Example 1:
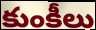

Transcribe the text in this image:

కుంకీలు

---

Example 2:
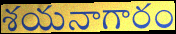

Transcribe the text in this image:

శయనాగారం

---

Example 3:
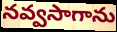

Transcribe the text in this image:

నవ్వసాగాను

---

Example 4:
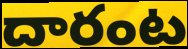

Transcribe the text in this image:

దారంట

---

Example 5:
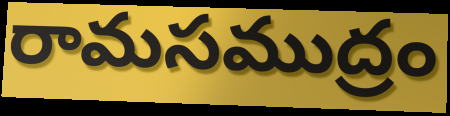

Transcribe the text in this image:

రామసముద్రం